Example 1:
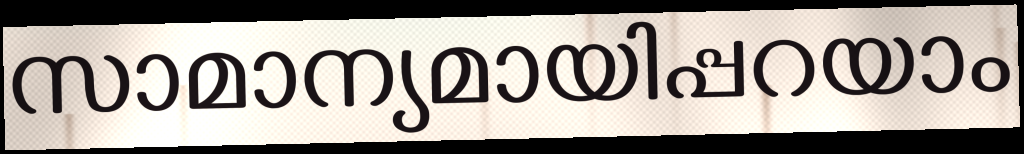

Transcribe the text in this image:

സാമാന്യമായിപ്പറയാം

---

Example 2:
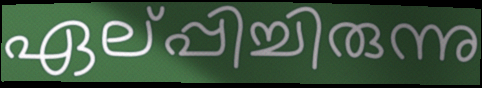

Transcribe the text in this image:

ഏല്പ്പിച്ചിരുന്നു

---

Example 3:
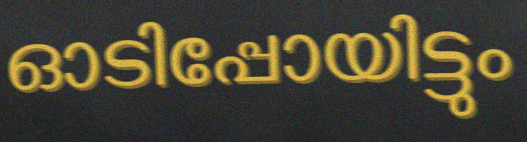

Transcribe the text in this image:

ഓടിപ്പോയിട്ടും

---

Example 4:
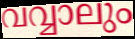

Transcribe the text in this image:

വവ്വാലും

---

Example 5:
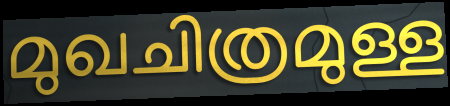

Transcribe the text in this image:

മുഖചിത്രമുള്ള